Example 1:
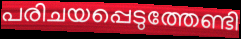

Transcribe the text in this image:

പരിചയപ്പെടുത്തേണ്ടി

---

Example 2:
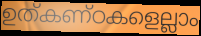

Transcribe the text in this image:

ഉത്കണ്ഠകളെല്ലാം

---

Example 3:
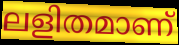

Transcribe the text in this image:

ലളിതമാണ്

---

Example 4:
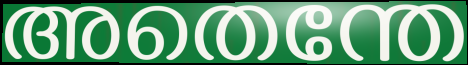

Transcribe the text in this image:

അതെന്തേ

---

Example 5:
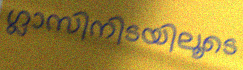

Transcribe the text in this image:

ഗ്ലാസിനിടയിലൂടെ